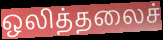
ஒலித்தலைச்